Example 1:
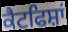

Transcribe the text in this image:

ਕੈਟਫਿਸ਼ਾਂ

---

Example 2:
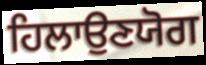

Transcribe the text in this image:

ਹਿਲਾਉਣਯੋਗ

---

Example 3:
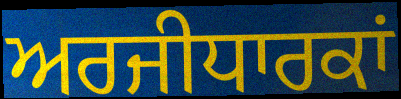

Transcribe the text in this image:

ਅਰਜੀਧਾਰਕਾਂ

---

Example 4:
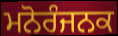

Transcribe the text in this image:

ਮਨੋਰੰਜਨਕ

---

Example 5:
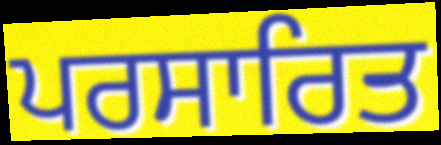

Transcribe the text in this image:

ਪਰਸਾਰਿਤ